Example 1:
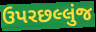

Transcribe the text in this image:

ઉપરછલ્લુંજ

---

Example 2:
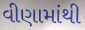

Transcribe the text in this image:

વીણામાંથી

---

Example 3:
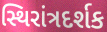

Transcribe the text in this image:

સ્થિરાંત્રદર્શક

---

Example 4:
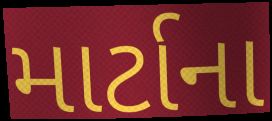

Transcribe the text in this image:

માર્ટાના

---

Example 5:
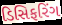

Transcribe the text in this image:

ડિસિફરિંગ